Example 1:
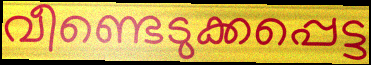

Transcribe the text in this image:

വീണ്ടെടുക്കപ്പെട്ട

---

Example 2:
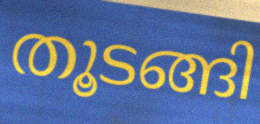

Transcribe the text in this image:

തൂടങ്ങി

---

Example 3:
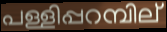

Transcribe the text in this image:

പള്ളിപ്പറമ്പില്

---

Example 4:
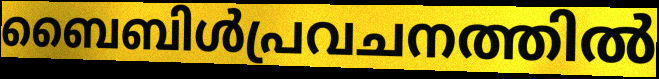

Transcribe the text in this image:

ബൈബിൾപ്രവചനത്തിൽ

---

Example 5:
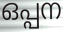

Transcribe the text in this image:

ഒപ്പന